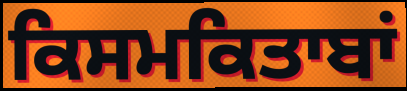
ਕਿਸਮਕਿਤਾਬਾਂ